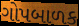
ગોપબાળક